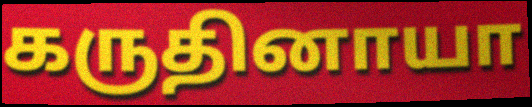
கருதினாயா